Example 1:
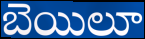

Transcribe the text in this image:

బెయిలూ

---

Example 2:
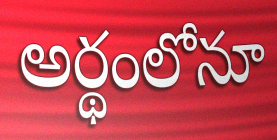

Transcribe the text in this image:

అర్థంలోనూ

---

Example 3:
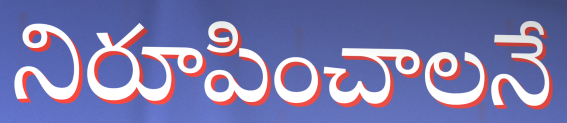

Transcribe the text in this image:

నిరూపించాలనే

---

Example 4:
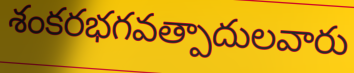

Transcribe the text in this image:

శంకరభగవత్పాదులవారు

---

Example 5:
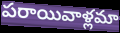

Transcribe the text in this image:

పరాయివాళ్లమా